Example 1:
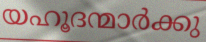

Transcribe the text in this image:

യഹൂദന്മാർക്കു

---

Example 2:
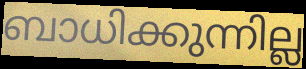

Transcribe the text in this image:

ബാധിക്കുന്നില്ല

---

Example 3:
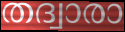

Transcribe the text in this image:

തദ്വാരാ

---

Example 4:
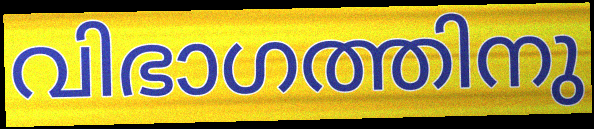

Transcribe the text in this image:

വിഭാഗത്തിനു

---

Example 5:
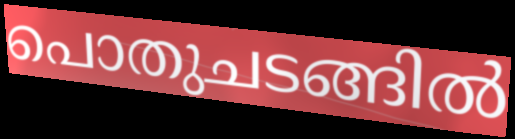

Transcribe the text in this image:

പൊതുചടങ്ങിൽ